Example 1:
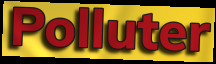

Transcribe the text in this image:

Polluter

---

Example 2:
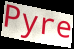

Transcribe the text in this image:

Pyre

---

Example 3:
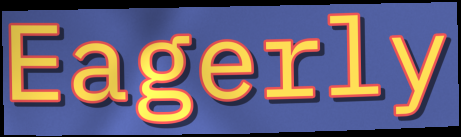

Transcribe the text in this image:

Eagerly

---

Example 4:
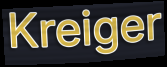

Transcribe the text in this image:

Kreiger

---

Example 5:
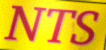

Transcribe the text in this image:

NTS